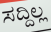
ಸದ್ದಿಲ್ಲ